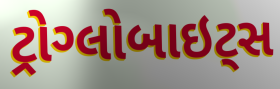
ટ્રોગ્લોબાઇટ્સ